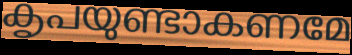
കൃപയുണ്ടാകണമേ